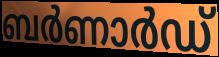
ബർണാർഡ്